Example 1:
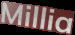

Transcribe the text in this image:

Millia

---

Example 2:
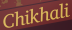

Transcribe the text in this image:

Chikhali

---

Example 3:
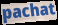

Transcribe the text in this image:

pachat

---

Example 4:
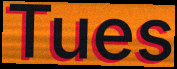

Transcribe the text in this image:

Tues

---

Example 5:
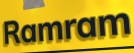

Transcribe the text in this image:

Ramram